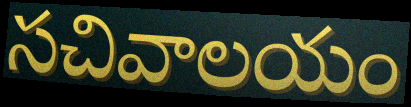
సచివాలయం